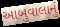
આબુવાલાનું